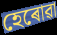
হেৰোৱা